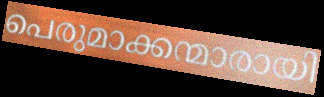
പെരുമാക്കന്മാരായി